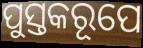
ପୁସ୍ତକରୂପେ